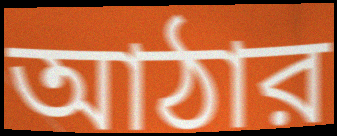
আঠার